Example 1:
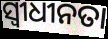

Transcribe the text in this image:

ସ୍ୱୀଧୀନତା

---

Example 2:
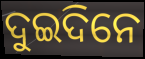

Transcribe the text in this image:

ଦୁଇଦିନେ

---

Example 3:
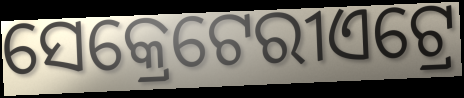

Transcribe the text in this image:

ସେକ୍ରେଟେରୀଏଟ୍ରେ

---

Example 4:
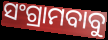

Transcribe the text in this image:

ସଂଗ୍ରାମବାବୁ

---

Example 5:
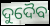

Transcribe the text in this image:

ଦୁଦୈବ